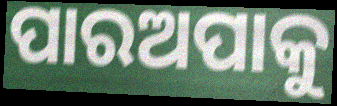
ପାରଅପାକୁ